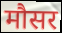
मौसर